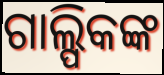
ଗାଲ୍ପିକଙ୍କ